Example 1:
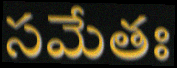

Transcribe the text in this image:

సమేతః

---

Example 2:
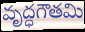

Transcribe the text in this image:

వృద్ధగౌతమి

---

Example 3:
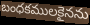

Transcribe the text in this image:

బంధకములకైనను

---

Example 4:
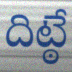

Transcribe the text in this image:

దిట్ఠే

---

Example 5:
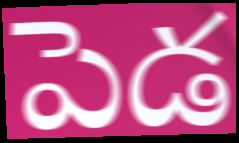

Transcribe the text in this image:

పెడ